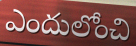
ఎందులోంచి